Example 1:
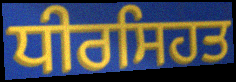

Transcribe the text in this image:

ਧੀਰਸਿਹਤ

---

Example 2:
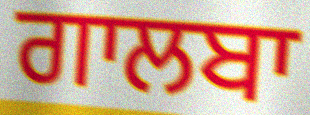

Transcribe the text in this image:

ਗਾਲਬਾ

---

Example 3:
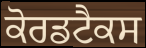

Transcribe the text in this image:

ਕੋਰਡਟੈਕਸ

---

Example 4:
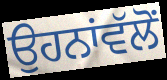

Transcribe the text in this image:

ਉਹਨਾਂਵੱਲੋਂ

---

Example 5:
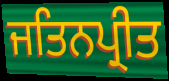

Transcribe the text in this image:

ਜਤਿਨਪ੍ਰੀਤ